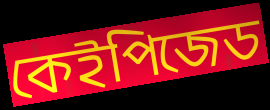
কেইপিজেড